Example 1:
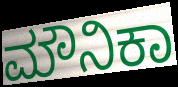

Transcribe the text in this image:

ಮೌನಿಕಾ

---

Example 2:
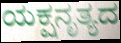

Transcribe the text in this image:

ಯಕ್ಷನೃತ್ಯದ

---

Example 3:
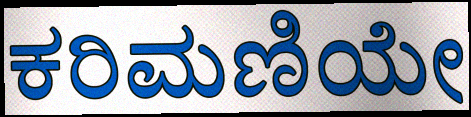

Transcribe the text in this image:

ಕರಿಮಣಿಯೇ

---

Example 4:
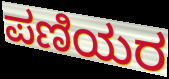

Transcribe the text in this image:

ಪಣಿಯರ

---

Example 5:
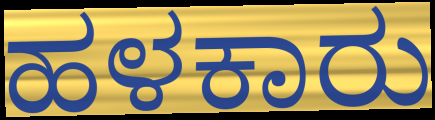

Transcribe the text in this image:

ಹಳಕಾರು